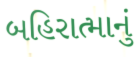
બહિરાત્માનું